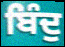
ਬਿੰਦੁ